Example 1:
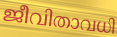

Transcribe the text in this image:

ജീവിതാവധി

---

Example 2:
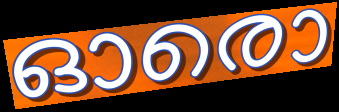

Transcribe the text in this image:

ഓരൊ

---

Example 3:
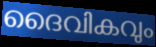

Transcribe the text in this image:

ദൈവികവും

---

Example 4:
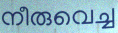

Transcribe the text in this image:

നീരുവെച്ച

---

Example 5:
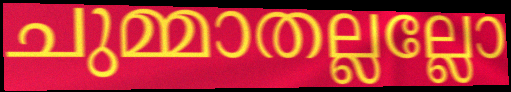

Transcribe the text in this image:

ചുമ്മാതല്ലല്ലോ